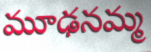
మూఢనమ్మ